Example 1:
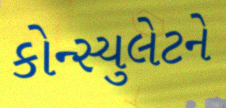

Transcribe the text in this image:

કોન્સ્યુલેટને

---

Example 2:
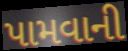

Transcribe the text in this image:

પામવાની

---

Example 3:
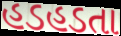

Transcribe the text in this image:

હડહડતા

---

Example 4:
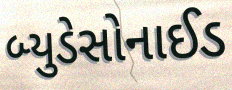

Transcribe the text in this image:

બ્યુડેસોનાઈડ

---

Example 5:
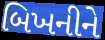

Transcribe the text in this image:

બિખનીને